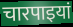
चारपाइयां